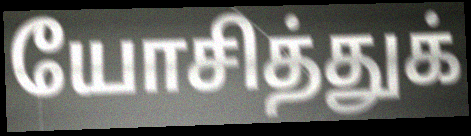
யோசித்துக்